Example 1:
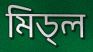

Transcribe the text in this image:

মিড্‌ল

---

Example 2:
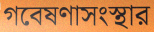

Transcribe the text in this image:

গবেষণাসংস্থার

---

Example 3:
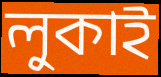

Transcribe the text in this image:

লুকাই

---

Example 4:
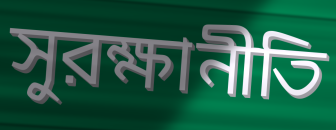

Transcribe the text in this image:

সুরক্ষানীতি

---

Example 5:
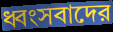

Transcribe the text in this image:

ধ্বংসবাদের